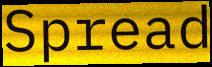
Spread